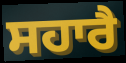
ਸਹਾਰੈ